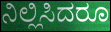
ನಿಲ್ಲಿಸಿದರೂ